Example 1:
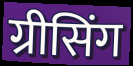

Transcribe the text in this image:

ग्रीसिंग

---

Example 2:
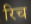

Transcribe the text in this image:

रिच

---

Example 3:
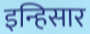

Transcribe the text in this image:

इन्हिसार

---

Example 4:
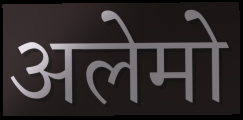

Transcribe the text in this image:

अलेमो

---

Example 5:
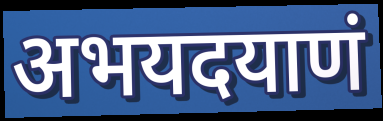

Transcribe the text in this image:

अभयदयाणं